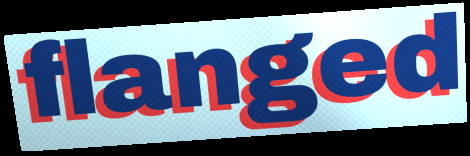
flanged